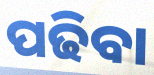
ପଢିବା